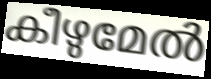
കീഴുമേൽ